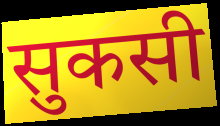
सुकसी